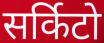
सर्किटो